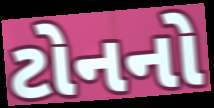
ટોનનો